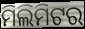
ମିଲିମିଟର